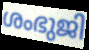
ശംഭുജി